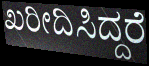
ಖರೀದಿಸಿದ್ದರೆ